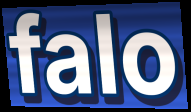
falo